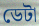
ডেটা